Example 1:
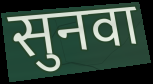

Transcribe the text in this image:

सुनवा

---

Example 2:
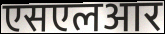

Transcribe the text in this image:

एसएलआर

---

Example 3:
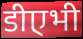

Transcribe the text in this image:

डीएभी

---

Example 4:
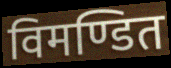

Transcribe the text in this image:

विमण्डित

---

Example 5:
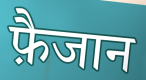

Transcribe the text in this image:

फ़ैजान